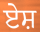
ਏਸ਼